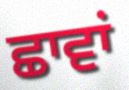
ਛਾਵਾਂ